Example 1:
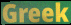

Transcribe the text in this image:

Greek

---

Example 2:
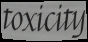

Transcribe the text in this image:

toxicity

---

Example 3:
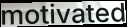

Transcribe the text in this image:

motivated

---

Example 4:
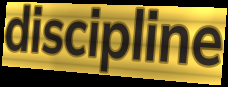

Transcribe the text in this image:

discipline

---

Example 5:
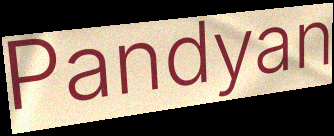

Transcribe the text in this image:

Pandyan